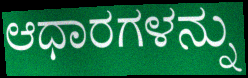
ಆಧಾರಗಳನ್ನು